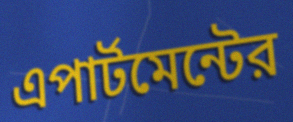
এপার্টমেন্টের